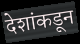
देशांकडून